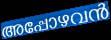
അപ്പോഴവൻ